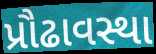
પ્રૌઢાવસ્થા